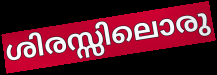
ശിരസ്സിലൊരു